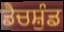
ਡੈਚਸ਼ੁੰਡ